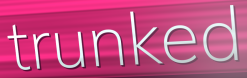
trunked